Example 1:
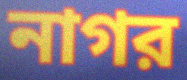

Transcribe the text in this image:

নাগর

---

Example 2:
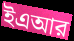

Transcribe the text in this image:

ইএআর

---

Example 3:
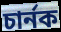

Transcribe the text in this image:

চার্নক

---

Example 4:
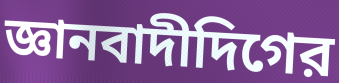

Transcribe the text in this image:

জ্ঞানবাদীদিগের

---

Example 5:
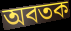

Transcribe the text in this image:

অবতক